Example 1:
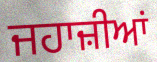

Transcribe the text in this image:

ਜਹਾਜ਼ੀਆਂ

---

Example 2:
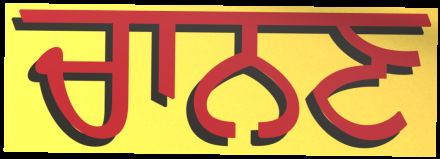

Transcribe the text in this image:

ਚਾਨਣ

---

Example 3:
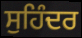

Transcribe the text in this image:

ਸੁਹਿੰਦਰ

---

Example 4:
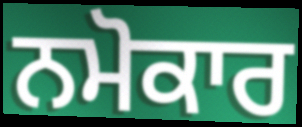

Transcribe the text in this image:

ਨਮੋਕਾਰ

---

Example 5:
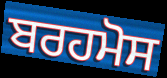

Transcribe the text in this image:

ਬਰਹਮੋਸ